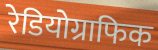
रेडियोग्राफिक